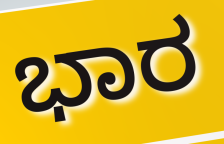
ಭಾರ